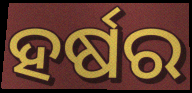
ହର୍ଷର